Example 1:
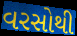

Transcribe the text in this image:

વરસોથી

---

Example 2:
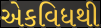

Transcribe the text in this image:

એકવિધથી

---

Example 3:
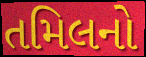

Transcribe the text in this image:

તમિલનો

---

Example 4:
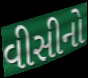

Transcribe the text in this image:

વીસીનો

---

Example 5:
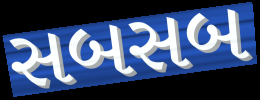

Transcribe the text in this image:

સબસબ